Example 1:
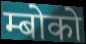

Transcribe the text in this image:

म्बोको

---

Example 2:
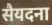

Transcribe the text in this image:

सैयदना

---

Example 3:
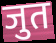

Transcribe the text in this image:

जुत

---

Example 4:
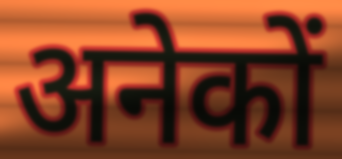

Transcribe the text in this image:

अनेकों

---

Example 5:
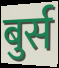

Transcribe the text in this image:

बुर्स